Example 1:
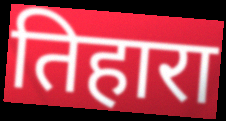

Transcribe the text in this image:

तिहारा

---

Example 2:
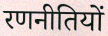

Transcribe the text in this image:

रणनीतियों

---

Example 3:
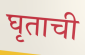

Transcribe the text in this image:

घृताची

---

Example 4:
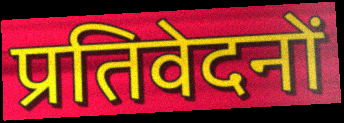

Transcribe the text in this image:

प्रतिवेदनों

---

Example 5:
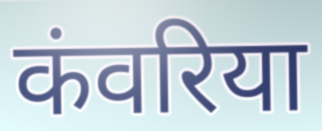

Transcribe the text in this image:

कंवरिया